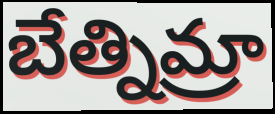
బేత్నిమ్రా